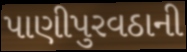
પાણીપુરવઠાની